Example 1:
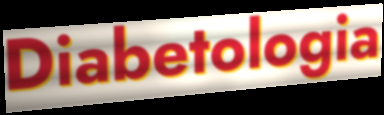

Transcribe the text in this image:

Diabetologia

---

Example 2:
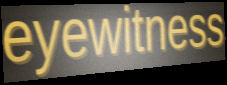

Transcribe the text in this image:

eyewitness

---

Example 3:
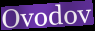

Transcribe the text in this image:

Ovodov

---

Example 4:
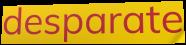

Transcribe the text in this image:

desparate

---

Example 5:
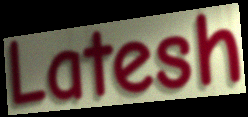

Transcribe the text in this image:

Latesh